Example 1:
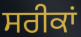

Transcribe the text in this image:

ਸਰੀਕਾਂ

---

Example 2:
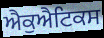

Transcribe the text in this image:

ਐਕੁਐਟਿਕਸ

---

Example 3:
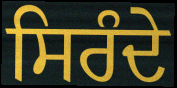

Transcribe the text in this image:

ਸਿਰੰਦੇ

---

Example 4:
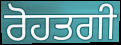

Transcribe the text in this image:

ਰੋਹਤਗੀ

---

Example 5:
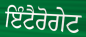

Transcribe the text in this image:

ਇੰਟੈਰੋਗੇਟ